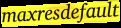
maxresdefault